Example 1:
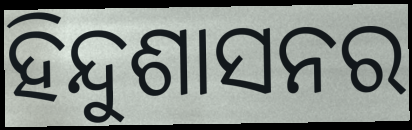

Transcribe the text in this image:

ହିନ୍ଦୁଶାସନର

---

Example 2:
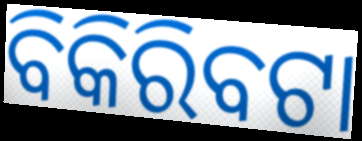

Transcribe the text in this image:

ବିକିରିବଟା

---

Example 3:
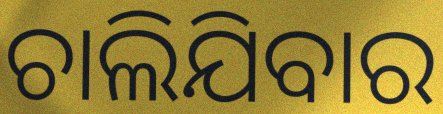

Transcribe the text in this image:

ଚାଲିଯିବାର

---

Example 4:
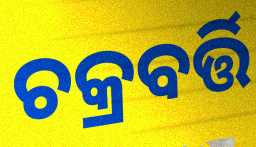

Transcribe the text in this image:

ଚକ୍ରବର୍ତ୍ତି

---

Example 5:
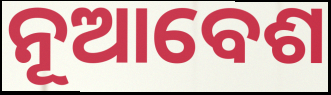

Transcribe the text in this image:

ନୂଆବେଶ